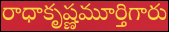
రాధాకృష్ణమూర్తిగారు